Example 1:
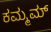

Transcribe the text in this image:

ಕಮ್ಮಮ್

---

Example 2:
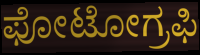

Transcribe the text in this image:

ಫೋಟೋಗ್ರಫಿ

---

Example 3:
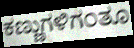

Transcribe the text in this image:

ಕಣ್ಣುಗಳಿಗಂತೂ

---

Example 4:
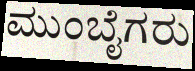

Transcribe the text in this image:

ಮುಂಬೈಗರು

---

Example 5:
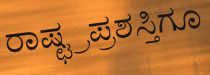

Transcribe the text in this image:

ರಾಷ್ಟ್ರಪ್ರಶಸ್ತಿಗೂ